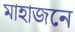
মাহাজনে